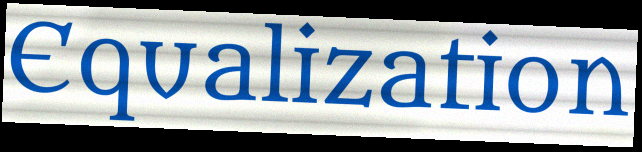
Equalization